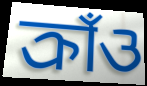
ক্রাঁও